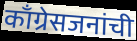
काँग्रेसजनांची